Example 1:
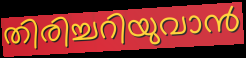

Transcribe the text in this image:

തിരിച്ചറിയുവാൻ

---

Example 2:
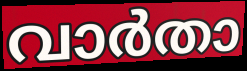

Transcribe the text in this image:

വാർതാ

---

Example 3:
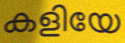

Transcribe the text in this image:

കളിയേ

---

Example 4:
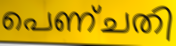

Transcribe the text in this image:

പെണ്ചതി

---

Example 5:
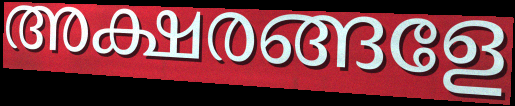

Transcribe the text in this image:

അക്ഷരങ്ങളേ